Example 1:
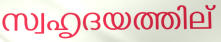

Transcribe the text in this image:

സ്വഹൃദയത്തില്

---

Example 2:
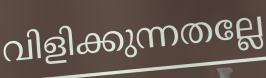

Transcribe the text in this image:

വിളിക്കുന്നതല്ലേ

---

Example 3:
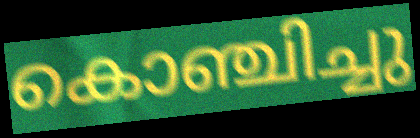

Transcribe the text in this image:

കൊഞ്ചിച്ചു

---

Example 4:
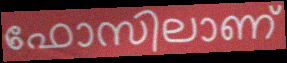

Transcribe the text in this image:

ഫോസിലാണ്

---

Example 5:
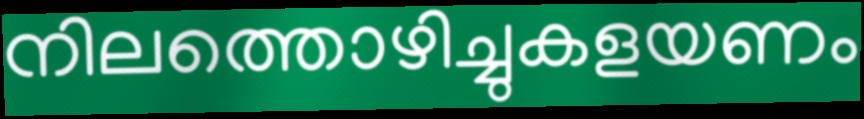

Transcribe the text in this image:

നിലത്തൊഴിച്ചുകളയണം